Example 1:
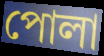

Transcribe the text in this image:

পোলা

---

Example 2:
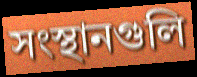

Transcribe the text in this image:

সংস্থানগুলি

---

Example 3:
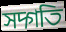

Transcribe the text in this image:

সদ্গতি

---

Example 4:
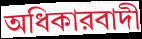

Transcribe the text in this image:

অধিকারবাদী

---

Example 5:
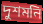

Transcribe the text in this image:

দুশমনি